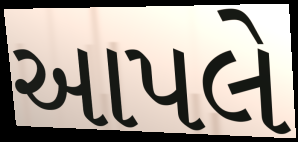
આપલે